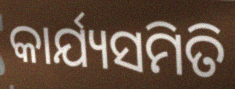
କାର୍ଯ୍ୟସମିତି